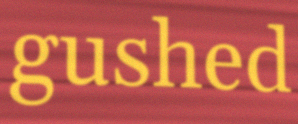
gushed